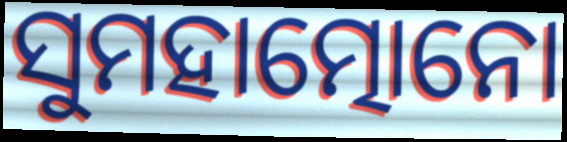
ସୁମହାତ୍ମୋନୋ